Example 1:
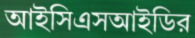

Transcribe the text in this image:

আইসিএসআইডির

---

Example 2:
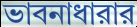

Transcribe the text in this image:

ভাবনাধারার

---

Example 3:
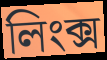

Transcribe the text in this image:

লিংক্স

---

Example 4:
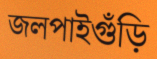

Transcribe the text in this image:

জলপাইগুঁড়ি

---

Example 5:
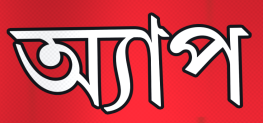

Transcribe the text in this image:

অ্যাপ